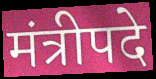
मंत्रीपदे